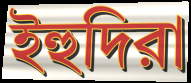
ইহুদিরা